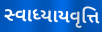
સ્વાધ્યાયવૃત્તિ